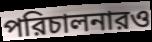
পরিচালনারও